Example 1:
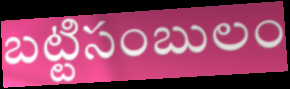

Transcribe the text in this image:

బట్టిసంబులం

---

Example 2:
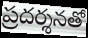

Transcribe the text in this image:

ప్రదర్శనతో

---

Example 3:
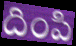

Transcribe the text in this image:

దింపి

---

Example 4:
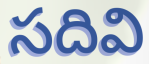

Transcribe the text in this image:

సదివి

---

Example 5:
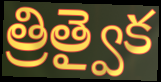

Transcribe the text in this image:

త్రిత్వైక